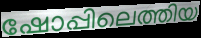
ഷോപ്പിലെത്തിയ